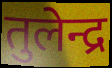
तुलेन्द्र